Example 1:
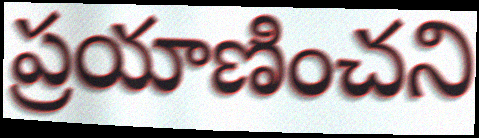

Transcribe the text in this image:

ప్రయాణించని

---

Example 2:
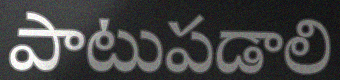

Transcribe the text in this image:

పాటుపడాలి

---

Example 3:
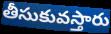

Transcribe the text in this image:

తీసుకువస్తారు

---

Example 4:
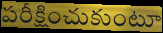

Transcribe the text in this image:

పరీక్షించుకుంటూ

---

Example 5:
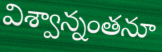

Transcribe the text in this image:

విశ్వాన్నంతనూ